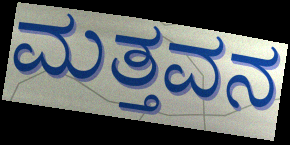
ಮತ್ತವನ